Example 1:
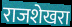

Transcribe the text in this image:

राजशेखरा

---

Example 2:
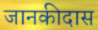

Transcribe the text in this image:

जानकीदास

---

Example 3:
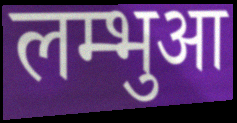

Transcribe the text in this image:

लम्भुआ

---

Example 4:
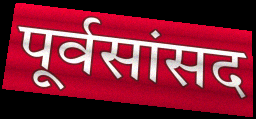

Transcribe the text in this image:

पूर्वसांसद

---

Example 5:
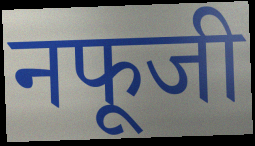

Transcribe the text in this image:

नफूजी